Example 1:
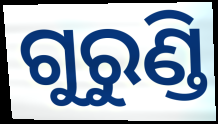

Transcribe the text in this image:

ଗୁରୁଣ୍ଡି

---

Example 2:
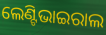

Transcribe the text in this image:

ଲେଣ୍ଟିଭାଇରାଲ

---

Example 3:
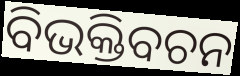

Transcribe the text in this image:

ବିଭକ୍ତିବଚନ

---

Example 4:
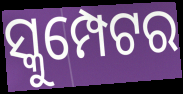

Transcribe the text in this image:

ସ୍କୁମ୍ପେଟର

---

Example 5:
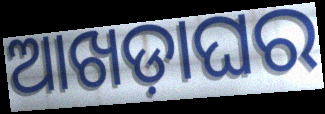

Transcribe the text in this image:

ଆଖଡ଼ାଘର